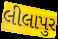
લીલાપુર